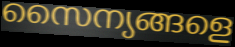
സൈന്യങ്ങളെ